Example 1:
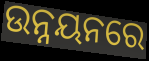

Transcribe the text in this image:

ଉନ୍ନୟନରେ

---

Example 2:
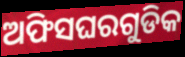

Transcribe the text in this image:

ଅଫିସଘରଗୁଡିକ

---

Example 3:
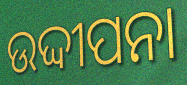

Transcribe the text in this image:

ଉଦ୍ଦୀପନା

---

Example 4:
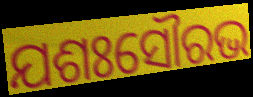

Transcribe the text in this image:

ଯଶଃସୌରଭ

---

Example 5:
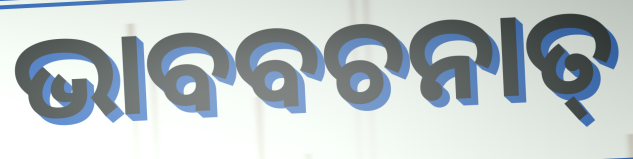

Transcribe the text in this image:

ଭାବବଚନାତ୍